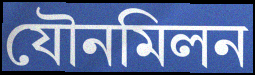
যৌনমিলন